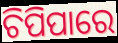
ଚିପିପାରେ